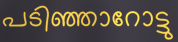
പടിഞ്ഞാറോട്ടു